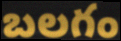
బలగం